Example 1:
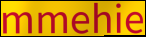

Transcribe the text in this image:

mmehie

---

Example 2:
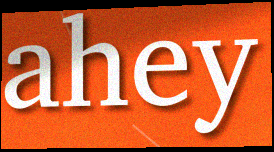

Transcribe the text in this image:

ahey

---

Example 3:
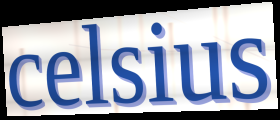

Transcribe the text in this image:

celsius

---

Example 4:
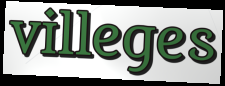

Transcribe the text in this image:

villeges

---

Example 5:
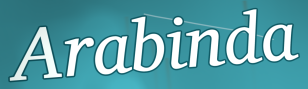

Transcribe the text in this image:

Arabinda